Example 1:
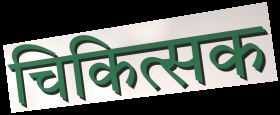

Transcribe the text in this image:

चिकित्सक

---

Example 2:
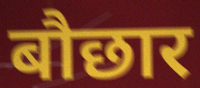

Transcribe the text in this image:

बौछार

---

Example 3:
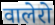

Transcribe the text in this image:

वालेरो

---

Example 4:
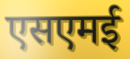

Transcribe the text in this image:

एसएमई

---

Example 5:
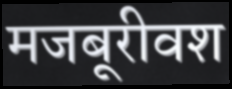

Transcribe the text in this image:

मजबूरीवश